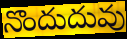
నొందుదువు